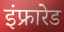
इंफ्रारेड